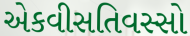
એકવીસતિવસ્સો